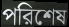
পরিশেষ